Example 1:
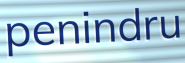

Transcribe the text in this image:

penindru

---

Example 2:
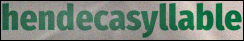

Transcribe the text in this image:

hendecasyllable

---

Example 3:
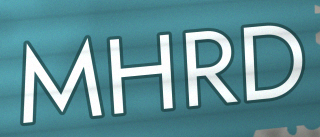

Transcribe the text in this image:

MHRD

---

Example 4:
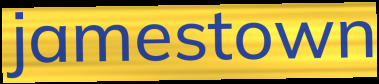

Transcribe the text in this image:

jamestown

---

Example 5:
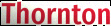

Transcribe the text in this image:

Thornton